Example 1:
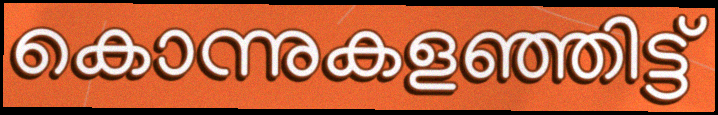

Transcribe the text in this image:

കൊന്നുകളഞ്ഞിട്ട്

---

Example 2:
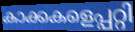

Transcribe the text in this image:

കാക്കകളെപ്പറ്റി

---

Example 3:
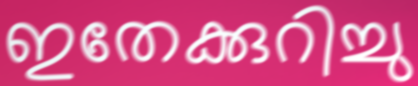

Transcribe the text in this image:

ഇതേക്കുറിച്ചു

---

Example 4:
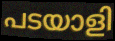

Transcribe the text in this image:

പടയാളി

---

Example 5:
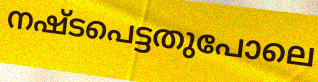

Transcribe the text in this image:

നഷ്ടപെട്ടതുപോലെ